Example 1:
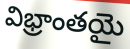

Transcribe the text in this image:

విభ్రాంతయై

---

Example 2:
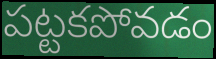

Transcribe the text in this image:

పట్టకపోవడం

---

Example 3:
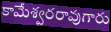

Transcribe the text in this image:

కామేశ్వరరావుగారు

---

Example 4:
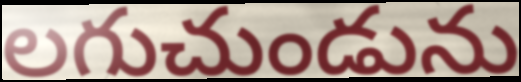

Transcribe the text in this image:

లగుచుండును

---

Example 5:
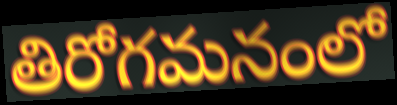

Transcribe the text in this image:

తిరోగమనంలో